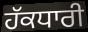
ਹੱਕਧਾਰੀ